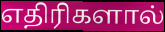
எதிரிகளால்